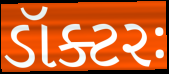
ડૉક્ટરઃ